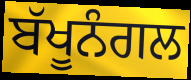
ਬੱਖੂਨੰਗਲ